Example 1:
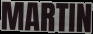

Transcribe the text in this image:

MARTIN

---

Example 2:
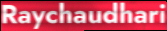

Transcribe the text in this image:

Raychaudhari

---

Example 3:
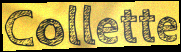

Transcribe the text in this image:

Collette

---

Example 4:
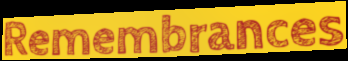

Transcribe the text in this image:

Remembrances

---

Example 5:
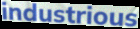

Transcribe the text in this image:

industrious